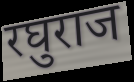
रघुराज